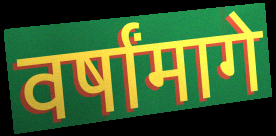
वर्षांमागे